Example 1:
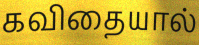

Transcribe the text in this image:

கவிதையால்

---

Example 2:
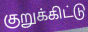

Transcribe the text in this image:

குறுக்கிட்டு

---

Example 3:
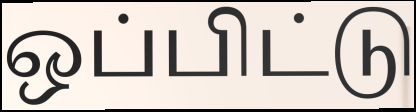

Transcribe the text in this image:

ஒப்பிட்டு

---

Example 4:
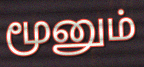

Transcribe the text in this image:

மூனும்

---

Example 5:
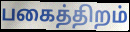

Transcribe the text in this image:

பகைத்திறம்